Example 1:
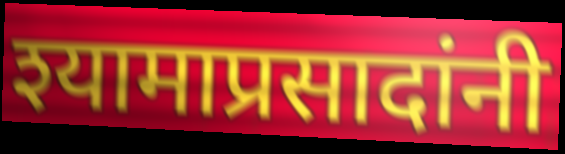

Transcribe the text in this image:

श्यामाप्रसादांनी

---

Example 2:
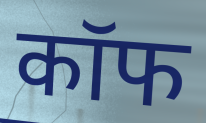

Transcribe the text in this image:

कॉफ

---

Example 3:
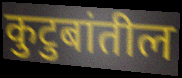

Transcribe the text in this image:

कुटुबांतील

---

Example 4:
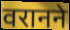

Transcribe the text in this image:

वरानने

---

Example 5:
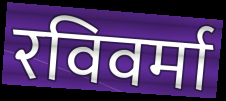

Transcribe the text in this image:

रविवर्मा